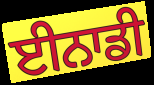
ਈਨਾਡੀ